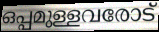
ഒപ്പമുള്ളവരോട്